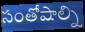
సంతోషాల్ని